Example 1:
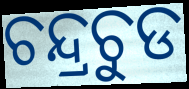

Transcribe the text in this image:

ଚନ୍ଦ୍ରଚୁଡ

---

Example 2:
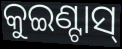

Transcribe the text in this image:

କୁଇଣ୍ଟାସ୍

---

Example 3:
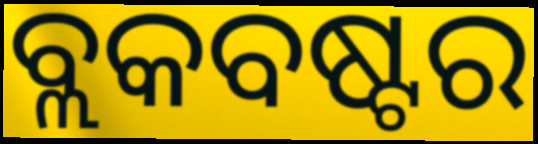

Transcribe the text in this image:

ବ୍ଲକବଷ୍ଟର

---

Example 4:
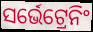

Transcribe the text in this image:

ସର୍ଭେଟ୍ରେନିଂ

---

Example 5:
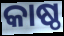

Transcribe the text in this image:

କାଷ୍ଠ